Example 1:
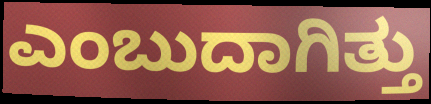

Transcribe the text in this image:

ಎಂಬುದಾಗಿತ್ತು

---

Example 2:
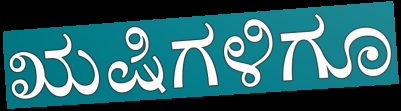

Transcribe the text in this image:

ಋಷಿಗಳಿಗೂ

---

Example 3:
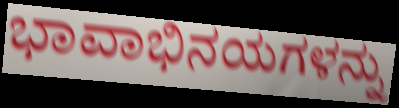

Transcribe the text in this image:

ಭಾವಾಭಿನಯಗಳನ್ನು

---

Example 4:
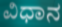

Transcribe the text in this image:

ವಿಧಾನ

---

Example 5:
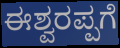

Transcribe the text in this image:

ಈಶ್ವರಪ್ಪಗೆ